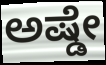
ಅಷ್ಡೇ